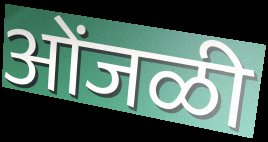
ओंजळी